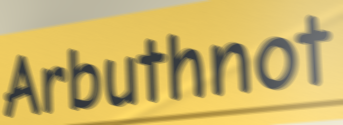
Arbuthnot